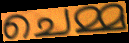
ചെമ്മ